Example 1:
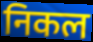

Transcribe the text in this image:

निकल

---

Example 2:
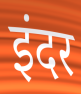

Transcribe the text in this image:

इंदर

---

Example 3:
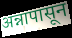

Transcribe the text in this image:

अन्नापासून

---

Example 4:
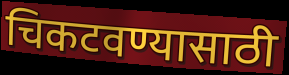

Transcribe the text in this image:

चिकटवण्यासाठी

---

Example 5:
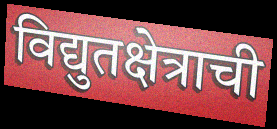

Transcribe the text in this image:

विद्युतक्षेत्राची